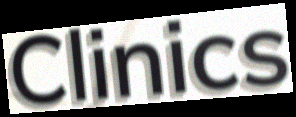
Clinics